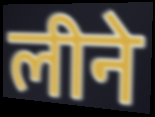
लीने